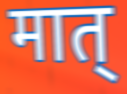
मात्